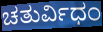
ಚತುರ್ವಿಧಂ